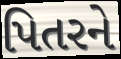
પિતરને